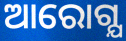
ଆରୋଗ୍ଯ